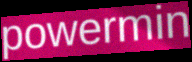
powermin